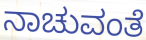
ನಾಚುವಂತೆ